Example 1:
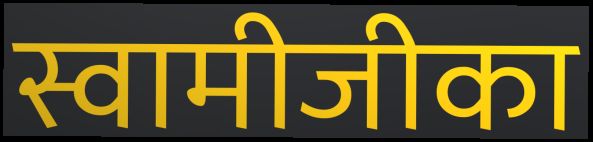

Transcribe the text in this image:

स्वामीजीका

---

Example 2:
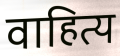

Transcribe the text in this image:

वाहित्य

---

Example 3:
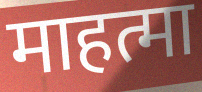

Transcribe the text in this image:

माहत्मा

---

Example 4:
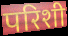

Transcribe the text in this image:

परिशी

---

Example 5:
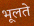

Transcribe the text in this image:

भूलते